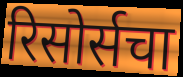
रिसोर्सचा